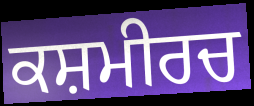
ਕਸ਼ਮੀਰਚ